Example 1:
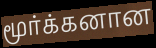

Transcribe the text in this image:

மூர்க்கனான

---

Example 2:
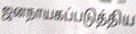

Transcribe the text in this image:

ஜனநாயகப்படுத்திய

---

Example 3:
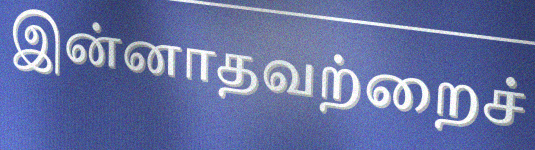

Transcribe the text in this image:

இன்னாதவற்றைச்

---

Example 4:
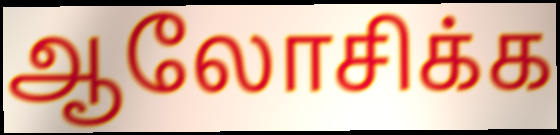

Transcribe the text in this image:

ஆலோசிக்க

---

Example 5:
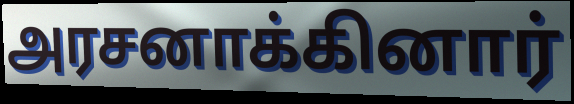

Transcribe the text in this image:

அரசனாக்கினார்